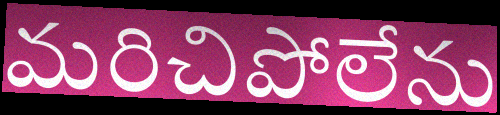
మరిచిపోలేను